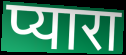
प्यारा